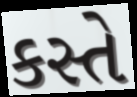
કસ્તે